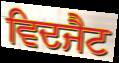
ਵਿਦਜੈਟ